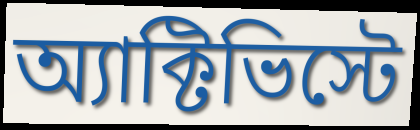
অ্যাক্টিভিস্টে